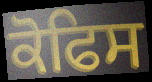
ਕੋਫਿਸ